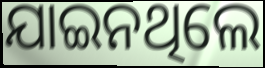
ଯାଇନଥିଲେ